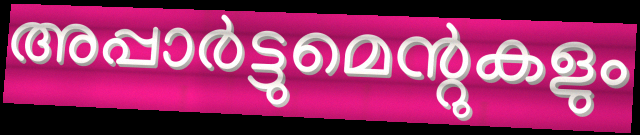
അപ്പാർട്ടുമെന്റുകളും